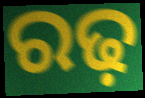
ରଢ଼